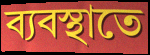
ব্যবস্থাতে